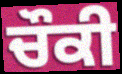
ਚੌਕੀ